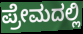
ಪ್ರೇಮದಲ್ಲಿ